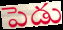
పెడు